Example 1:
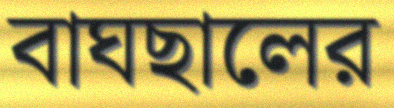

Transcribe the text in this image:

বাঘছালের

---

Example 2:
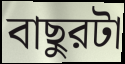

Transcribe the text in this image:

বাছুরটা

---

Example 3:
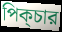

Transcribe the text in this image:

পিক্চার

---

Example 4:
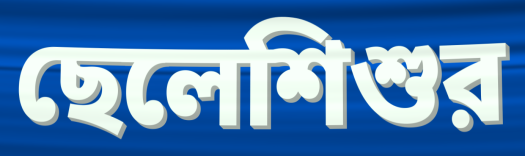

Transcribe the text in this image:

ছেলেশিশুর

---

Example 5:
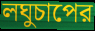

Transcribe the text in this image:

লঘুচাপের